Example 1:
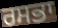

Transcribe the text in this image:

ਰਸਭਾ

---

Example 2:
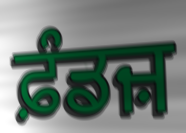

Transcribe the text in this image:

ਫ਼ੰਡਜ਼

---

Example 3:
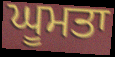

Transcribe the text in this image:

ਘੂਮਤਾ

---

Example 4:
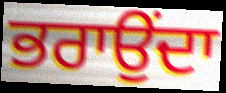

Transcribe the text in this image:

ਭਰਾਉਂਦਾ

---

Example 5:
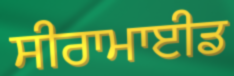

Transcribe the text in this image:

ਸੀਰਾਮਾਈਡ